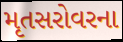
મૃતસરોવરના